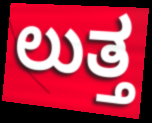
ಲುತ್ತ